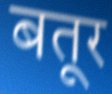
बतूर